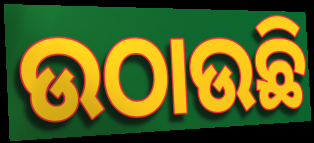
ଉଠାଉଛି